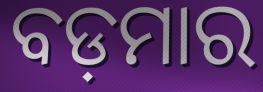
ବଡ଼ମାର